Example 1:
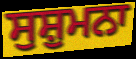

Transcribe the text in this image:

ਸੁਸ਼ੁਮਨਾ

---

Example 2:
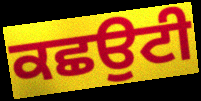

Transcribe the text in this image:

ਕਛਉਟੀ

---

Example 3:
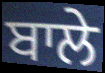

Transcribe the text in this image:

ਬਾਲੇ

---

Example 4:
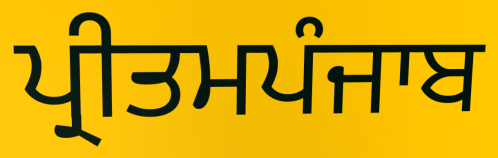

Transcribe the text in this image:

ਪ੍ਰੀਤਮਪੰਜਾਬ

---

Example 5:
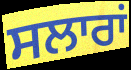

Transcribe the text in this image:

ਸਲਾਰਾਂ